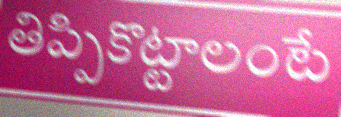
తిప్పికొట్టాలంటే